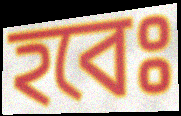
হবেঃ